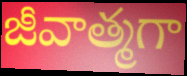
జీవాత్మగా